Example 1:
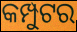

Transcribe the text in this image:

କମ୍ପୁଟର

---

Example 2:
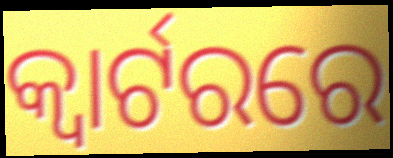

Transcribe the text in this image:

କ୍ଵାର୍ଟରରେ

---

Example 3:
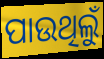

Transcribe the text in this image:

ପାଉଥିଲୁଁ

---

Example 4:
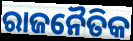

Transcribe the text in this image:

ରାଜନୈତିକ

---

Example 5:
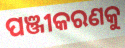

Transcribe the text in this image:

ପଞ୍ଜୀକରଣକୁ